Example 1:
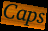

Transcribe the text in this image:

Caps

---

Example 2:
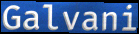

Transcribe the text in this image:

Galvani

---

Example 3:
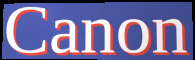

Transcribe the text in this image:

Canon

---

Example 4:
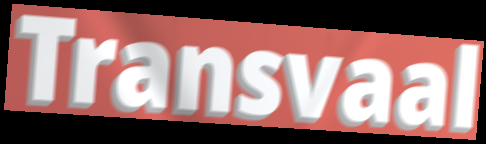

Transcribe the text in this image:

Transvaal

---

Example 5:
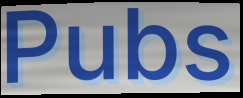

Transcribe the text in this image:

Pubs